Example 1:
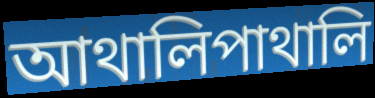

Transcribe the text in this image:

আথালিপাথালি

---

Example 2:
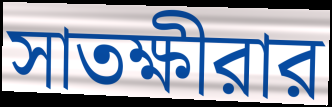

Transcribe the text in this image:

সাতক্ষীরার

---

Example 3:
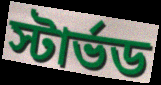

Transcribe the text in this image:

স্টার্ভড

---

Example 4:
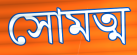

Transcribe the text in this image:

সোমত্ম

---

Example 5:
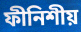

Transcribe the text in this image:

ফীনিশীয়